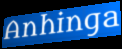
Anhinga